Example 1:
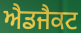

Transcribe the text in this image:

ਐਡਜੈਕਟ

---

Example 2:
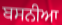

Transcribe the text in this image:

ਬਸਨੀਆ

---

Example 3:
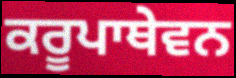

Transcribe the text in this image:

ਕਰੂਪਾਥੇਵਨ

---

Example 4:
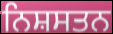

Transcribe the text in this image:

ਨਿਸ਼ਸਤਨ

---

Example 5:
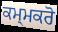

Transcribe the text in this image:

ਕਮ੍ਮਕਰੋ